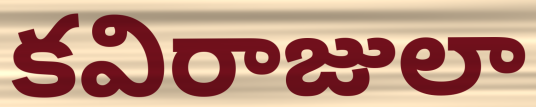
కవిరాజులా